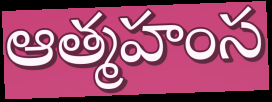
ఆత్మహంస